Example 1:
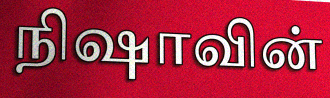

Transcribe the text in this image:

நிஷாவின்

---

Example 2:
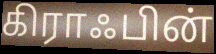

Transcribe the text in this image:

கிராஃபின்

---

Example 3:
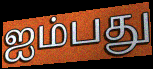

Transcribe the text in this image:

ஐம்பது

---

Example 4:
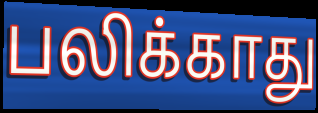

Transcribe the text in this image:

பலிக்காது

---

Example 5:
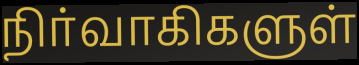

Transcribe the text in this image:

நிர்வாகிகளுள்